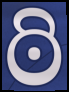
ఠి